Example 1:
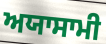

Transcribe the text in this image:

ਅਯਾਸਾਮੀ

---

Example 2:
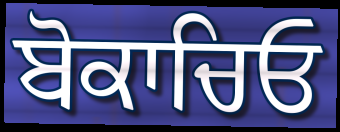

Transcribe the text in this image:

ਬੋਕਾਚਿਓ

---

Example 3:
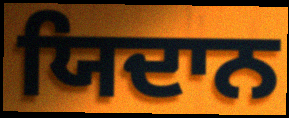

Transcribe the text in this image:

ਯਿਦਾਨ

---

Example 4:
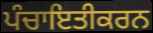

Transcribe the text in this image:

ਪੰਚਾਇਤੀਕਰਨ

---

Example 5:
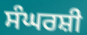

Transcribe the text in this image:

ਸੰਘਰਸ਼ੀ